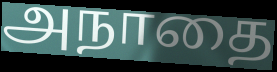
அநாதை